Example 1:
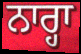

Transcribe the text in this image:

ਨਾਰ੍ਹਾ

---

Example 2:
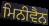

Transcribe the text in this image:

ਮਿਨੀਵੈਨ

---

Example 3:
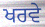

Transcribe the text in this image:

ਖਰਵੇ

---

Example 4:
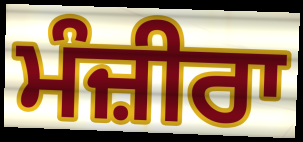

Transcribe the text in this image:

ਮੰਜ਼ੀਰਾ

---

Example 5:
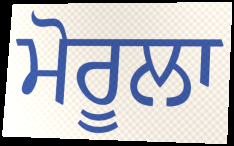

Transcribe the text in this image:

ਮੋਰੂਲਾ